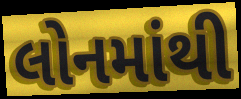
લોનમાંથી